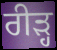
ਰੀੜ੍ਹ